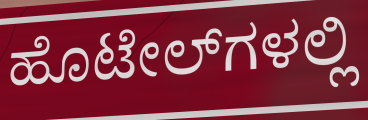
ಹೊಟೇಲ್‌ಗಳಲ್ಲಿ